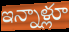
ఇన్నాళ్లూ